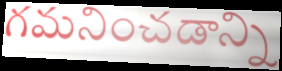
గమనించడాన్ని